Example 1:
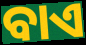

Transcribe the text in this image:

ବାଏ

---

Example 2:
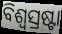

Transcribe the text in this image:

ବିଶ୍ୱସ୍ରଷ୍ଟା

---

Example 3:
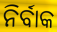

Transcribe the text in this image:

ନିର୍ବାକ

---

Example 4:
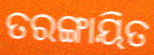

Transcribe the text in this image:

ତରଙ୍ଗାୟିତ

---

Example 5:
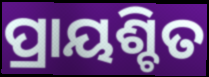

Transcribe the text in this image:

ପ୍ରାୟଶ୍ଚିତ